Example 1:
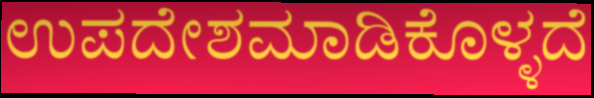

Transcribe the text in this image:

ಉಪದೇಶಮಾಡಿಕೊಳ್ಳದೆ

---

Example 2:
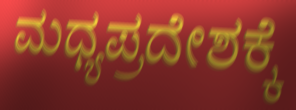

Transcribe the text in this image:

ಮಧ್ಯಪ್ರದೇಶಕ್ಕೆ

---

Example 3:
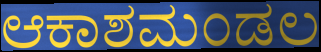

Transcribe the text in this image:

ಆಕಾಶಮಂಡಲ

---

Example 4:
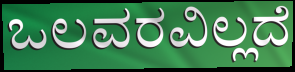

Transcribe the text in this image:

ಒಲವರವಿಲ್ಲದೆ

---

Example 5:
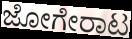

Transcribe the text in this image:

ಜೋಗೇರಾಟ